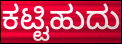
ಕಟ್ಟಿಹುದು